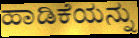
ಹಾಡಿಕೆಯನ್ನು